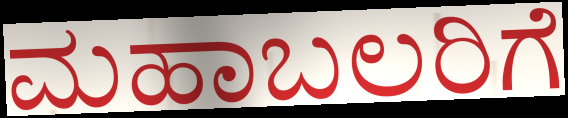
ಮಹಾಬಲರಿಗೆ